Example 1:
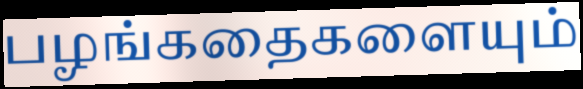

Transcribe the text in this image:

பழங்கதைகளையும்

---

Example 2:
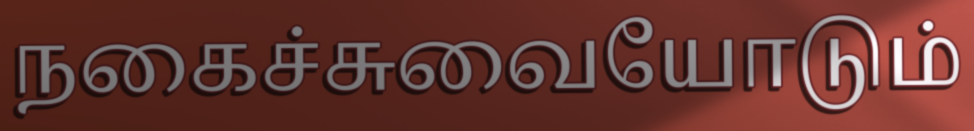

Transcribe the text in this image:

நகைச்சுவையோடும்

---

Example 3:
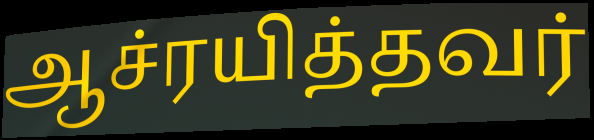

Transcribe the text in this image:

ஆச்ரயித்தவர்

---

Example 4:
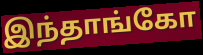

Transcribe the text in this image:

இந்தாங்கோ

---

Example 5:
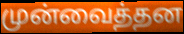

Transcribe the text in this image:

முன்வைத்தன